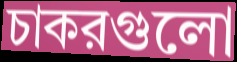
চাকরগুলো